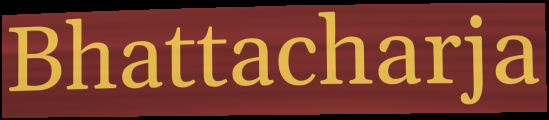
Bhattacharja